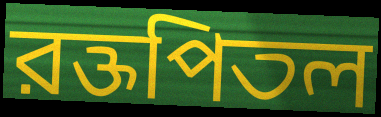
রক্তপিতল